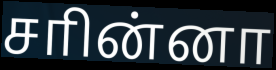
சரின்னா